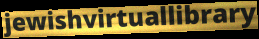
jewishvirtuallibrary